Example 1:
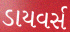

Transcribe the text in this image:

ડાયવર્સ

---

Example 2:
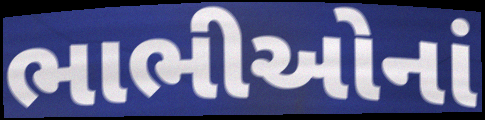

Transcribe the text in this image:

ભાભીઓનાં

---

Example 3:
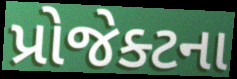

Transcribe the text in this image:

પ્રોજેક્ટના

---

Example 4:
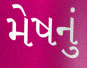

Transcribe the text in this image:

મેષનું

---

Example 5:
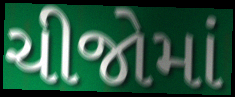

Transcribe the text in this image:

ચીજોમાં